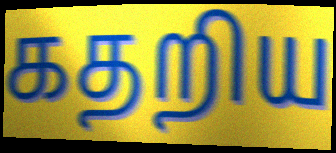
கதறிய